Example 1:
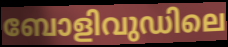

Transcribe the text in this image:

ബോളിവുഡിലെ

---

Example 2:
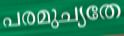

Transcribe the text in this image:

പരമുച്യതേ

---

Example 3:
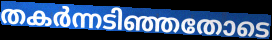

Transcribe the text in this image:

തകർന്നടിഞ്ഞതോടെ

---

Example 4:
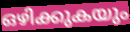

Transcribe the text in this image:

ഒഴിക്കുകയും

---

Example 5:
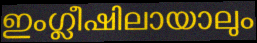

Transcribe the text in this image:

ഇംഗ്ലീഷിലായാലും